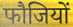
फौजियों